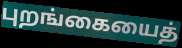
புறங்கையைத்